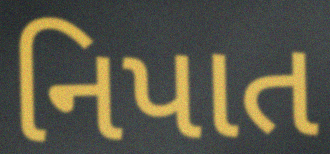
નિપાત